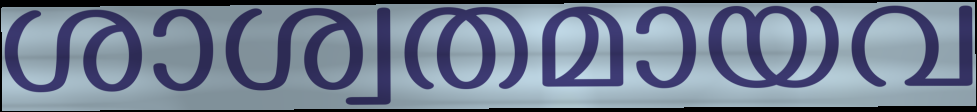
ശാശ്വതമായവ